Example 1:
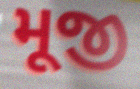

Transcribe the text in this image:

મૂજી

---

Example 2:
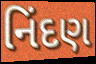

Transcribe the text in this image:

નિંદણ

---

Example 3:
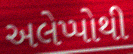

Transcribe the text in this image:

અલેપ્પોથી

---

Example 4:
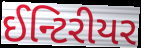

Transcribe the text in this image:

ઈન્ટિરીયર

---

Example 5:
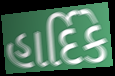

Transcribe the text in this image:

હાર્દિકે